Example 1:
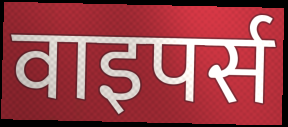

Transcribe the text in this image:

वाइपर्स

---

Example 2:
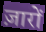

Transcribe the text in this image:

ज़ारों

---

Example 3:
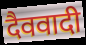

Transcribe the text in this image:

दैववादी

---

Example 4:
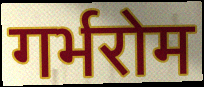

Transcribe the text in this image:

गर्भरोम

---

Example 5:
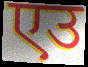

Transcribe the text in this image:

एउ